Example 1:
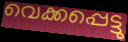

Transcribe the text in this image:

വെക്കപ്പെട്ടു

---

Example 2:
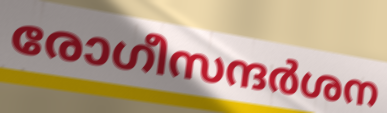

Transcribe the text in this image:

രോഗീസന്ദർശന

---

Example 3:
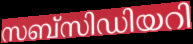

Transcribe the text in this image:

സബ്സിഡിയറി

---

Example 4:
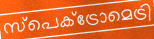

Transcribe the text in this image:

സ്പെക്ട്രോമെട്രി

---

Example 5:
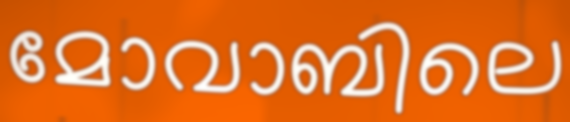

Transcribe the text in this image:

മോവാബിലെ